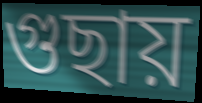
গুছায়